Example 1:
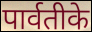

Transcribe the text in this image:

पार्वतीके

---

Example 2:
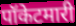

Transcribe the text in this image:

पॉकेटमारी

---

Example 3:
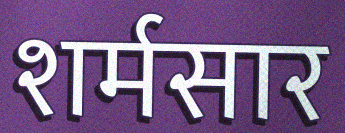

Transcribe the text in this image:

शर्मसार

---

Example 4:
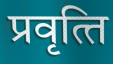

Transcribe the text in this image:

प्रवृत्‍ति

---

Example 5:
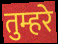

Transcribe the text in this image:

तुम्हरे